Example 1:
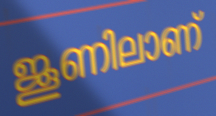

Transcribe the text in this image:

ജൂണിലാണ്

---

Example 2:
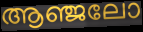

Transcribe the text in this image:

ആഞ്ജലോ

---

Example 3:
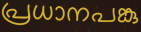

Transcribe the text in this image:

പ്രധാനപങ്കു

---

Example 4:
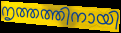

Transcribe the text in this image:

നൃത്തത്തിനായി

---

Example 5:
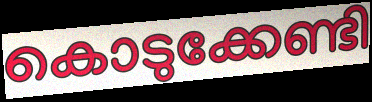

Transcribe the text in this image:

കൊടുക്കേണ്ടി